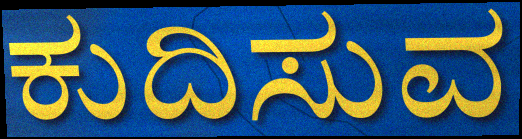
ಕುದಿಸುವ